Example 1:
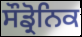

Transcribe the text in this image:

ਸੌਡ੍ਰੋਨਿਕ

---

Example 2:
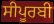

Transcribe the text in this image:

ਸੀਪੂਰਬੀ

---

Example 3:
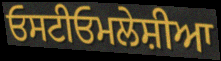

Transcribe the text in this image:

ਓਸਟੀਓਮਲੇਸ਼ੀਆ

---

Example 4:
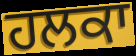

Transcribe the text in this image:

ਹਲਕਾ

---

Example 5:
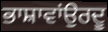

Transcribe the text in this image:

ਭਾਸ਼ਾਵਾਂਉਰਦੂ